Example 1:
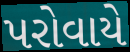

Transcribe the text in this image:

પરોવાયે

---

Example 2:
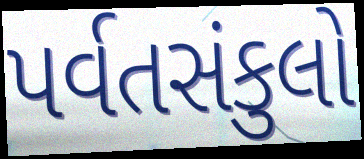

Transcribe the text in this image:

પર્વતસંકુલો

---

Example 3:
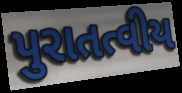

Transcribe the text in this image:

પુરાતત્વીય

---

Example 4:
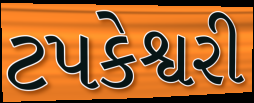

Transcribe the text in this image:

ટપકેશ્વરી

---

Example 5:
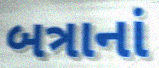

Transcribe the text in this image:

બત્રાનાં